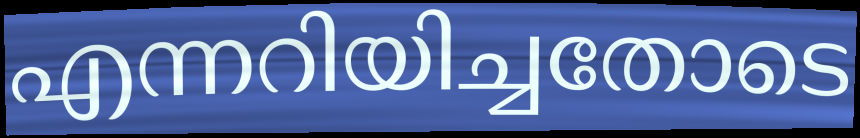
എന്നറിയിച്ചതോടെ